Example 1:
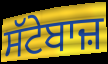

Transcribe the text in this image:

ਸੱਟੇਬਾਜ਼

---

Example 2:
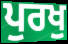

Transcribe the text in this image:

ਪੁਰਖੁ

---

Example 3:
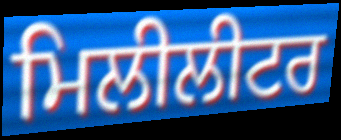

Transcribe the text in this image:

ਮਿਲੀਲੀਟਰ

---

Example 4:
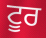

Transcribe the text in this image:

ਟੂਰ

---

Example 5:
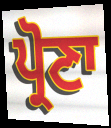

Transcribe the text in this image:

ਪ੍ਰੋਣਾ